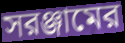
সরঞ্জামের